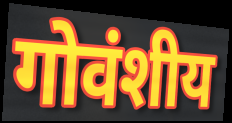
गोवंशीय